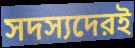
সদস্যদেরই